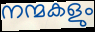
നന്മകളും